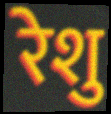
रेशु